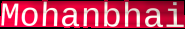
Mohanbhai